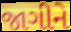
જાગીને